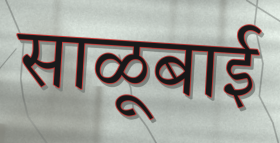
साळूबाई